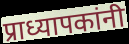
प्राध्यापकांनी